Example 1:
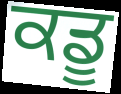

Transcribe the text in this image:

ਕਡੂ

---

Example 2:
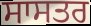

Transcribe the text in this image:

ਸਾਸਤਰ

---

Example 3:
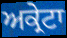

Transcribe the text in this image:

ਅਕ੍ਰੇਟਾ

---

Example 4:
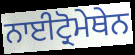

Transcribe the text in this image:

ਨਾਈਟ੍ਰੋਮੇਥੇਨ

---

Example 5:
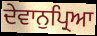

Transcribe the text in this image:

ਦੇਵਾਨੁਪ੍ਰਿਆ